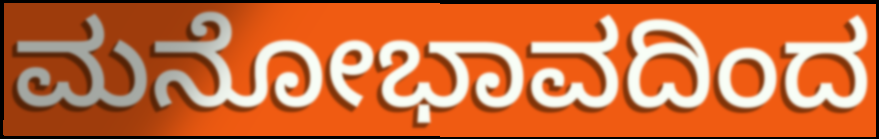
ಮನೋಭಾವದಿಂದ